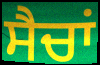
ਸੈਚਾਂ